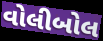
વોલીબોલ